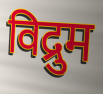
विद्रुम